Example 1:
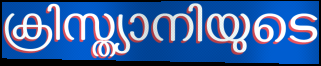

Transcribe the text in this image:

ക്രിസ്ത്യാനിയുടെ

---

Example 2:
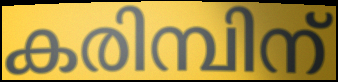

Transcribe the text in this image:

കരിമ്പിന്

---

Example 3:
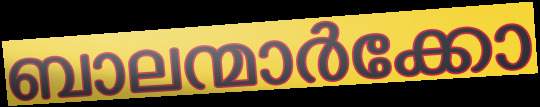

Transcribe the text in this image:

ബാലന്മാർക്കോ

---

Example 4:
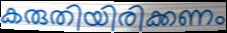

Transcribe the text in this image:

കരുതിയിരിക്കണം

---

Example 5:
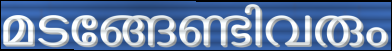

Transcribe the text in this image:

മടങ്ങേണ്ടിവരും